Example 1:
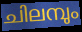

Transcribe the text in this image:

ചിലമ്പും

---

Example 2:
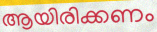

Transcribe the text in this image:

ആയിരിക്കണം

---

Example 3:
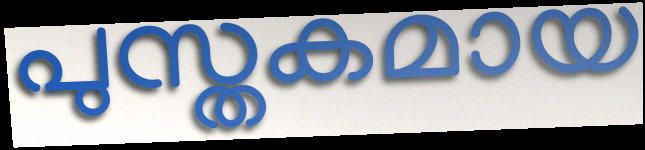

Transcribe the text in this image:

പുസ്തകമായ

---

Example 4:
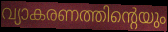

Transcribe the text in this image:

വ്യാകരണത്തിന്റെയും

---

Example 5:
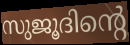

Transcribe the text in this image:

സുജൂദിന്റെ